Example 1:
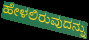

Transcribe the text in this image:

ಹೇಳಲಿರುವುದನ್ನು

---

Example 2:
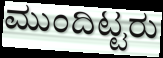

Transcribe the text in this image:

ಮುಂದಿಟ್ಟರು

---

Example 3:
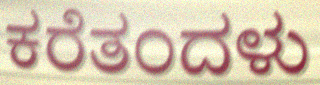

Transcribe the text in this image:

ಕರೆತಂದಳು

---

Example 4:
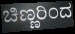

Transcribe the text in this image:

ಚಿಣ್ಣರಿಂದ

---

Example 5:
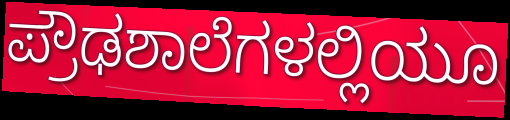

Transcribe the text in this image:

ಪ್ರೌಢಶಾಲೆಗಳಲ್ಲಿಯೂ